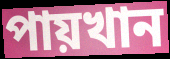
পায়খান